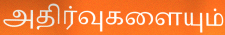
அதிர்வுகளையும்